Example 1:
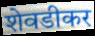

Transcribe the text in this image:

शेवडीकर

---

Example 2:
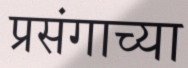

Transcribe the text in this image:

प्रसंगाच्या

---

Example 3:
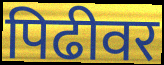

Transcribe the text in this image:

पिढीवर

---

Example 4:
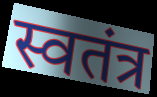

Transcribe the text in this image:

स्वतंत्र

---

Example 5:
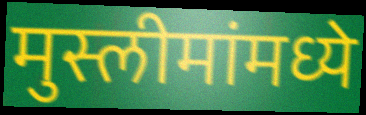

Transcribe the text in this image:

मुस्लीमांमध्ये